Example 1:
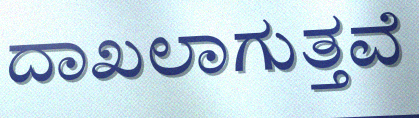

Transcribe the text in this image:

ದಾಖಲಾಗುತ್ತವೆ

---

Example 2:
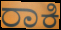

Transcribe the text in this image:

ರಾಕಿ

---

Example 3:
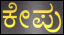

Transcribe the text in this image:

ಕೇಪು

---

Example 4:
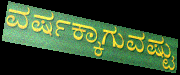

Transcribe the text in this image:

ವರ್ಷಕ್ಕಾಗುವಷ್ಟು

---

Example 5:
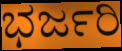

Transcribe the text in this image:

ಭರ್ಜರಿ